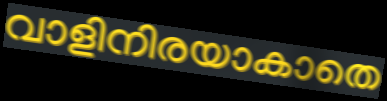
വാളിനിരയാകാതെ